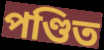
পণ্ডিত